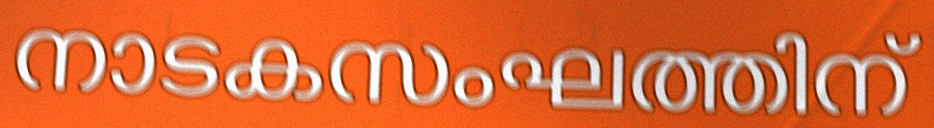
നാടകസംഘത്തിന്